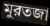
মুরতজা